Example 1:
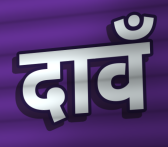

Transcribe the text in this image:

दावँ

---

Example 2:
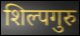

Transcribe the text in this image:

शिल्पगुरु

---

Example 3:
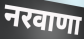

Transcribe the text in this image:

नरवाणा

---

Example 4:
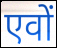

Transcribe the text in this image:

एवों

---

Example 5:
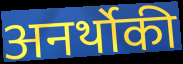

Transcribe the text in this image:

अनर्थोकी